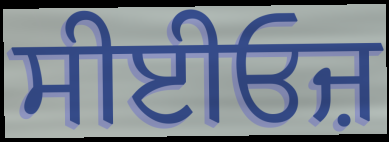
ਸੀਈਓਜ਼